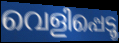
വെളിപ്പെടൂ